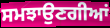
ਸਮਝਾਉਣਗੀਆਂ